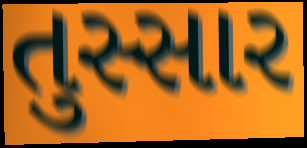
તુસ્સાર